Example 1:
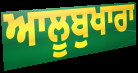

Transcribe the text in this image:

ਆਲੂਬੁਖਾਰਾ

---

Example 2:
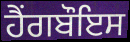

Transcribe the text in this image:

ਹੈਂਗਬੌਇਸ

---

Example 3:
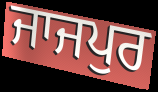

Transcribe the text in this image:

ਜਾਜਪੁਰ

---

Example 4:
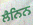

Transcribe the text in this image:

ਲੈਨਿਨ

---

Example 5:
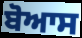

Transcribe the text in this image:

ਬੋਆਸ